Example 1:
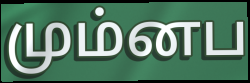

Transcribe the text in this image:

மும்னப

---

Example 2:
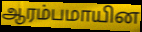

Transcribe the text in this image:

ஆரம்பமாயின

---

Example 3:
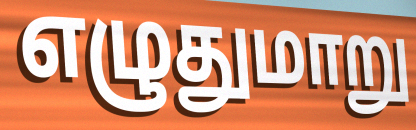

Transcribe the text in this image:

எழுதுமாறு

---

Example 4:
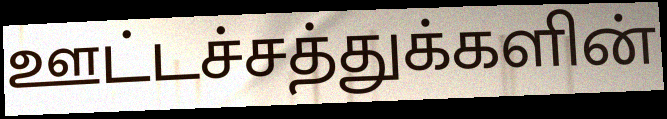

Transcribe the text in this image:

ஊட்டச்சத்துக்களின்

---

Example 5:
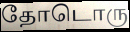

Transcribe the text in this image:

தோடொரு